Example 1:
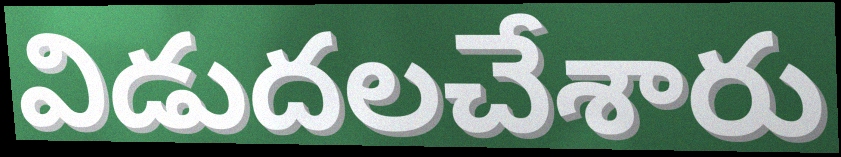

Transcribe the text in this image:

విడుదలచేశారు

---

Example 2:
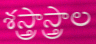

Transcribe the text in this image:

శస్త్రాస్త్రాల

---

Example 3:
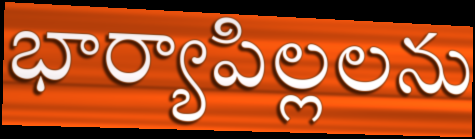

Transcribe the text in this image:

భార్యాపిల్లలను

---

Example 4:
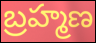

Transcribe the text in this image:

బ్రహ్మణ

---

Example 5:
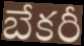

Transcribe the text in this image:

బేకరీ